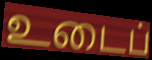
உடைப்